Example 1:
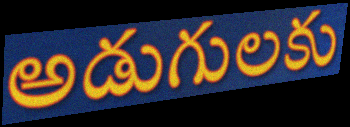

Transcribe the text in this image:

అడుగులకు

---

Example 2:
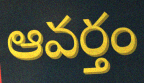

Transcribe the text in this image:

ఆవర్తం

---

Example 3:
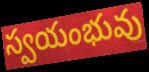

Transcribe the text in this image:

స్వయంభువు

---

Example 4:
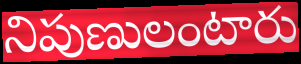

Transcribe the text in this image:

నిపుణులంటారు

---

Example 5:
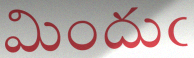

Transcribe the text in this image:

మిందుఁ